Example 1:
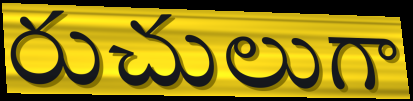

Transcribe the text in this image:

రుచులుగా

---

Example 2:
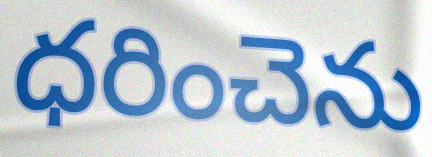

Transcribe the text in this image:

ధరించెను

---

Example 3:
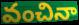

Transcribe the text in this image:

వంచినా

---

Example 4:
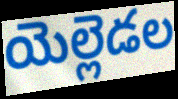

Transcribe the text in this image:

యెల్లెడల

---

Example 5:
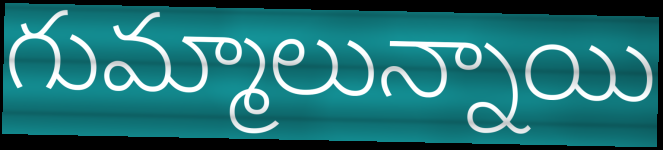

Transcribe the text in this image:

గుమ్మాలున్నాయి